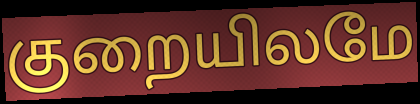
குறையிலமே